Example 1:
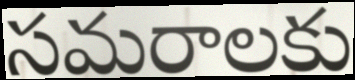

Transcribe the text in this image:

సమరాలకు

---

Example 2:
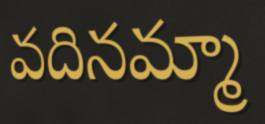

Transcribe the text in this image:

వదినమ్మా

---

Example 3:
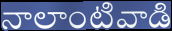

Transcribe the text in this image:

నాలాంటివాడి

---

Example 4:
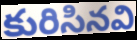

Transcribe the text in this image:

కురిసినవి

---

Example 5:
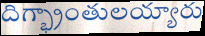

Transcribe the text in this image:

దిగ్భ్రాంతులయ్యారు